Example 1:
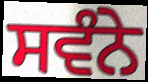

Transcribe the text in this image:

ਸਵੰਨੇ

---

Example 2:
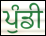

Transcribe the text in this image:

ਪੁੰਡੀ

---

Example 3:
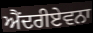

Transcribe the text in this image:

ਐਂਦਰੀਏਵਨਾ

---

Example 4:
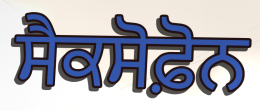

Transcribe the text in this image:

ਸੈਕਸੋਫ਼ੋਨ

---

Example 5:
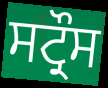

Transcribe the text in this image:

ਸਟ੍ਰੌਸ